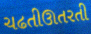
ચઢતીઊતરતી